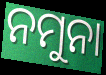
ନମୁନା